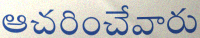
ఆచరించేవారు